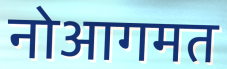
नोआगमत